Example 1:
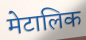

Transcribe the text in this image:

मेटालिक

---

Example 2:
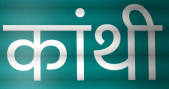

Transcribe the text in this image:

कांथी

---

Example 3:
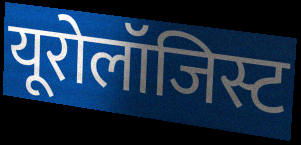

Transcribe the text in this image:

यूरोलॉजिस्ट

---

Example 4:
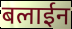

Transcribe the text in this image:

बलाईन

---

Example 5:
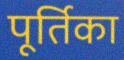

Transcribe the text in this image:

पूर्तिका